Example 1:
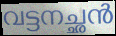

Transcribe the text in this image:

വട്ടനച്ഛൻ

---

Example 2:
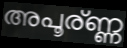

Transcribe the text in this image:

അപൂര്ണ്ണ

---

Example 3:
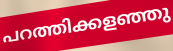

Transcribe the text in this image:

പറത്തിക്കളഞ്ഞു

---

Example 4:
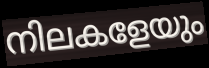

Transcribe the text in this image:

നിലകളേയും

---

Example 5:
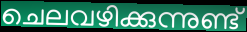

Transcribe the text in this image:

ചെലവഴിക്കുന്നുണ്ട്